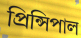
প্রিন্সিপাল